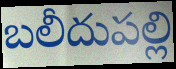
బలీదుపల్లి